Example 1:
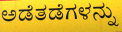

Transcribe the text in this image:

ಅಡೆತಡೆಗಳನ್ನು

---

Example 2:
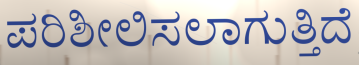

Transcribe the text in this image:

ಪರಿಶೀಲಿಸಲಾಗುತ್ತಿದೆ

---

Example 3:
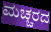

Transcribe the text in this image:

ಮಚ್ಚರದ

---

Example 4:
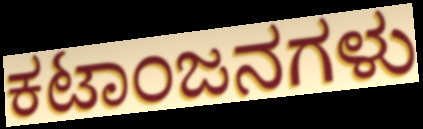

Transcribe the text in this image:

ಕಟಾಂಜನಗಳು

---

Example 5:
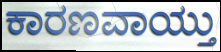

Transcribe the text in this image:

ಕಾರಣವಾಯ್ತು